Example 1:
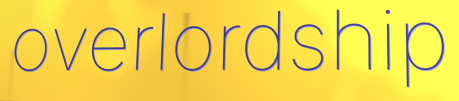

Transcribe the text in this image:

overlordship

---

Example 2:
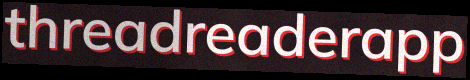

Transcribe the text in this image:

threadreaderapp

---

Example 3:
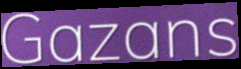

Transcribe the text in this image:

Gazans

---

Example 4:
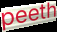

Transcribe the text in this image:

peeth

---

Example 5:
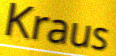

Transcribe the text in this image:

Kraus